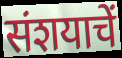
संशयाचें